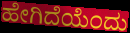
ಹೇಗಿದೆಯೆಂದು